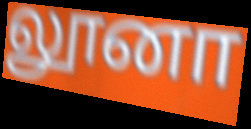
லூனா